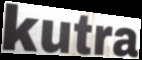
kutra